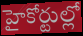
హైకోర్టుల్లో